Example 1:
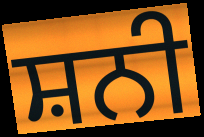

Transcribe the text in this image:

ਸ਼ਨੀ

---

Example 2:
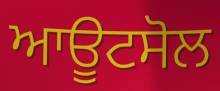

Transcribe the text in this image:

ਆਊਟਸੋਲ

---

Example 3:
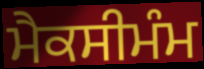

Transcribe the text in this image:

ਮੈਕਸੀਮੰਮ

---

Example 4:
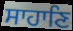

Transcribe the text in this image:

ਸਾਹਾਣਿ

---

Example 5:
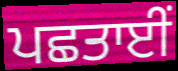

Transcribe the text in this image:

ਪਛਤਾਈਂ